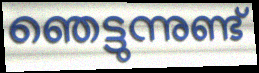
ഞെട്ടുന്നുണ്ട്